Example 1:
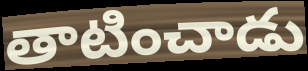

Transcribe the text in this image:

తాటించాడు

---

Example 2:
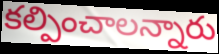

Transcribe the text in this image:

కల్పించాలన్నారు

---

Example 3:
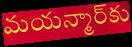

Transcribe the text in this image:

మయన్మార్‌కు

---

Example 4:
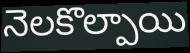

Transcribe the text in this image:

నెలకొల్పాయి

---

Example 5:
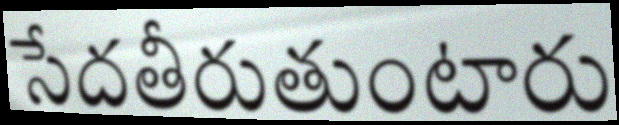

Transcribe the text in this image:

సేదతీరుతుంటారు